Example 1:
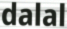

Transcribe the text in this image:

dalal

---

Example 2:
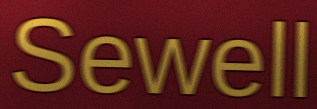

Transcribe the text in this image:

Sewell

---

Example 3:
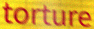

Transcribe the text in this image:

torture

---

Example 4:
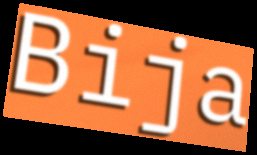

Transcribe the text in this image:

Bija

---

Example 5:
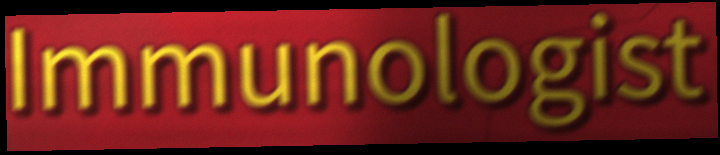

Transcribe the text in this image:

Immunologist